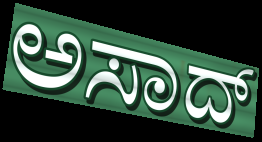
ಅಸಾದ್